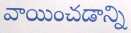
వాయించడాన్ని